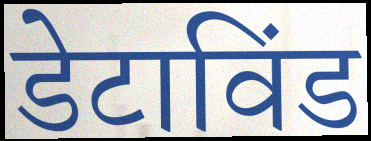
डेटाविंड